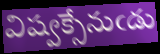
విష్వక్సేనుఁడు